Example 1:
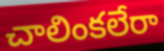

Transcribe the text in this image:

చాలింకలేరా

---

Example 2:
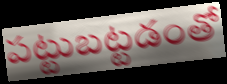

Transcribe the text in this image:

పట్టుబట్టడంతో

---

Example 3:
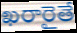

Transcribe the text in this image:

ఖరారైతే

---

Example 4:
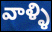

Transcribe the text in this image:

వాళ్ళి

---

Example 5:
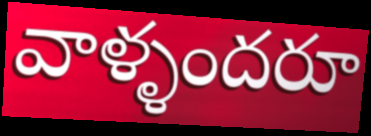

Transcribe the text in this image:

వాళ్ళందరూ